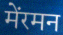
मेंरमन